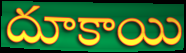
దూకాయి